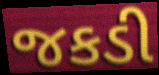
જકડી